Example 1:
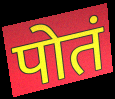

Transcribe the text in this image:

पोतं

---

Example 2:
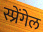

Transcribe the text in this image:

स्प्रेंगेल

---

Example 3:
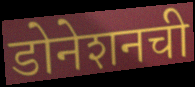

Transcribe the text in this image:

डोनेशनची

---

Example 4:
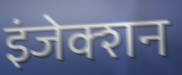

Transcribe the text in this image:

इंजेक्शन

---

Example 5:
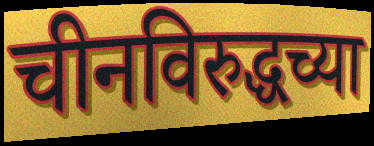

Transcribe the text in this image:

चीनविरुद्धच्या